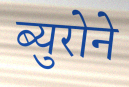
ब्युरोने